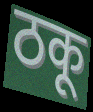
ठकू